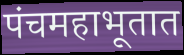
पंचमहाभूतात